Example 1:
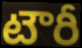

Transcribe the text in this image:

టౌరీ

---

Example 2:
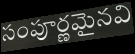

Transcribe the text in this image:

సంపూర్ణమైనవి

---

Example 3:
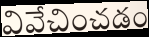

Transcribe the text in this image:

వివేచించడం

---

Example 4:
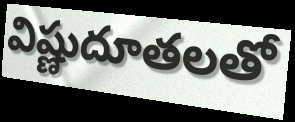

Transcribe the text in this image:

విష్ణుదూతలతో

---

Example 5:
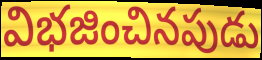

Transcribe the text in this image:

విభజించినపుడు